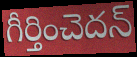
గీర్తించెదన్